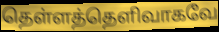
தெள்ளத்தெளிவாகவே